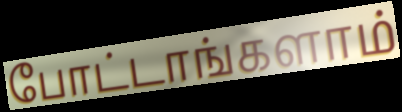
போட்டாங்களாம்